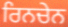
ਰਿਨਚੇਨ